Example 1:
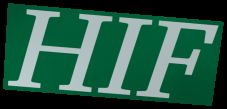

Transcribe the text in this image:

HIF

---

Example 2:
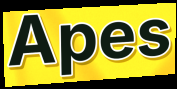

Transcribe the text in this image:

Apes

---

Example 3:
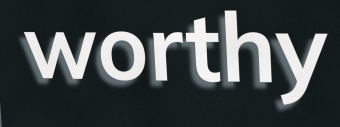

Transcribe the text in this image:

worthy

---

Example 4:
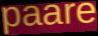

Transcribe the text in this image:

paare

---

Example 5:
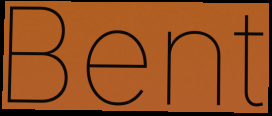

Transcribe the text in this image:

Bent